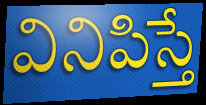
వినిపిస్తే